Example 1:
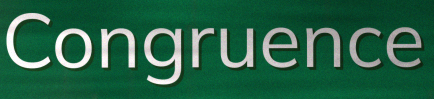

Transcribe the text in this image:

Congruence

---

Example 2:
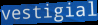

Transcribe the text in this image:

vestigial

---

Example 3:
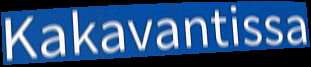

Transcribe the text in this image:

Kakavantissa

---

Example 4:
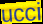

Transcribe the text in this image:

ucci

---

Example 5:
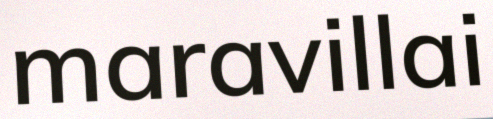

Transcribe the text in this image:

maravillai